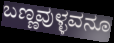
ಬಣ್ಣವುಳ್ಳವನೂ